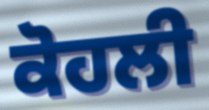
ਕੋਹਲੀ